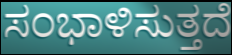
ಸಂಭಾಳಿಸುತ್ತದೆ